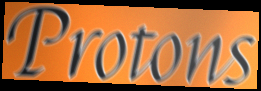
Protons